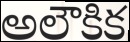
అలౌకిక